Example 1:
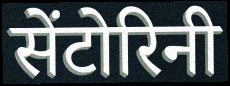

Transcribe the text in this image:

सेंटोरिनी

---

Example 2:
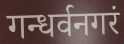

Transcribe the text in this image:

गन्धर्वनगरं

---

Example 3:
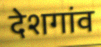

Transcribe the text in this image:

देशगांव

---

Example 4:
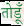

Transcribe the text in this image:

तोडूँ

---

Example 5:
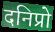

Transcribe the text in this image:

दनिप्रो